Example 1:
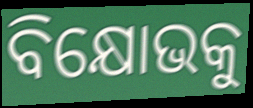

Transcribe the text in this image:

ବିକ୍ଷୋଭକୁ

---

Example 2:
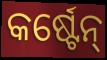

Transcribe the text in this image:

କର୍ଷ୍ଟେନ୍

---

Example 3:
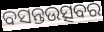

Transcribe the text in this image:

ବସନ୍ତଉତ୍ସବର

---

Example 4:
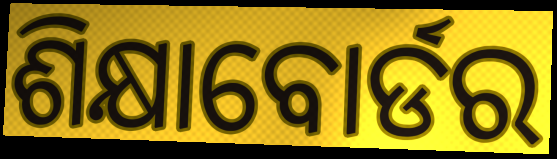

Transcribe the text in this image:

ଶିକ୍ଷାବୋର୍ଡର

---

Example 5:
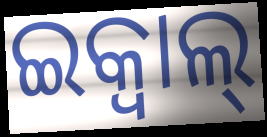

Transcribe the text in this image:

ଇକ୍ବାଲ୍